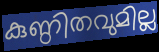
കുണ്ഠിതവുമില്ല